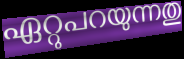
ഏറ്റുപറയുന്നതു